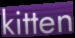
kitten